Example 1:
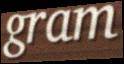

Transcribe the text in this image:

gram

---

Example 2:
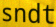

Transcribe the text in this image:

sndt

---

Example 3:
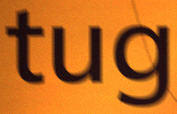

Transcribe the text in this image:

tug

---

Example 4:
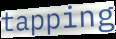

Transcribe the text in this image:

tapping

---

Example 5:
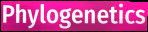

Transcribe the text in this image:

Phylogenetics